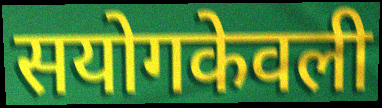
सयोगकेवली